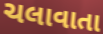
ચલાવાતા